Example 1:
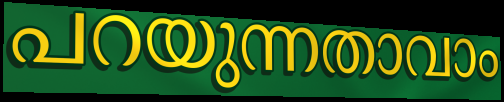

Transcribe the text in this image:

പറയുന്നതാവാം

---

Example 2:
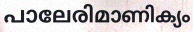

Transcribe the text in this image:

പാലേരിമാണിക്യം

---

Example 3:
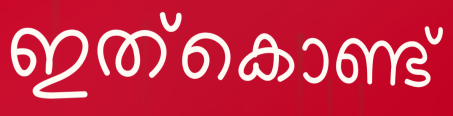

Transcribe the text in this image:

ഇത്കൊണ്ട്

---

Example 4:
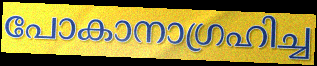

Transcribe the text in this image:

പോകാനാഗ്രഹിച്ച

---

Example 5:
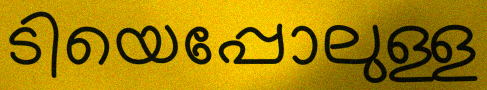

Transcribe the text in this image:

ടിയെപ്പോലുള്ള